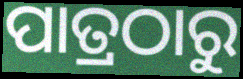
ପାତ୍ରଠାରୁ